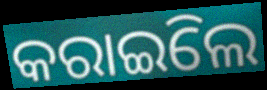
କରାଇିଲେ